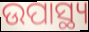
ଉପାସ୍ଥ୍ୟ